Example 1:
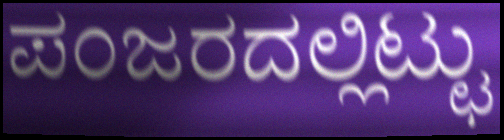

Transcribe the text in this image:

ಪಂಜರದಲ್ಲಿಟ್ಟು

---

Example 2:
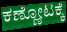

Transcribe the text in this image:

ಕಣ್ಣೋಟಕ್ಕೆ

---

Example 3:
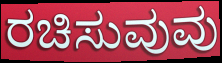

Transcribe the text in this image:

ರಚಿಸುವುವು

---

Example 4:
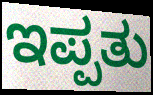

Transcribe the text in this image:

ಇಪ್ಪತು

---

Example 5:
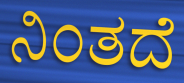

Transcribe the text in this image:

ನಿಂತದೆ